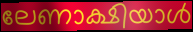
ലേണാക്ഷിയാൾ